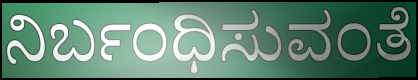
ನಿರ್ಬಂಧಿಸುವಂತೆ